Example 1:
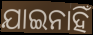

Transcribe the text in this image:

ଯାଇନାହିଁ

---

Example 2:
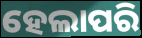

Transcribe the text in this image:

ହେଲାପରି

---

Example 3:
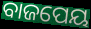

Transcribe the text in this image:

ବାଜପେୟ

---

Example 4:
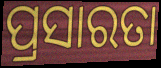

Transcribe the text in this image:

ପ୍ରସାରତା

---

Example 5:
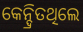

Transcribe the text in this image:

କେନ୍ଦ୍ରିତଥିଲେ